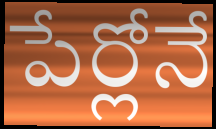
పేర్లోనే